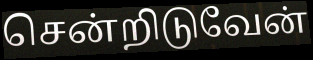
சென்றிடுவேன்